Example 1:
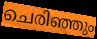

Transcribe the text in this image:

ചെരിഞ്ഞും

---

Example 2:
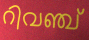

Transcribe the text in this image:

റിവഞ്ച്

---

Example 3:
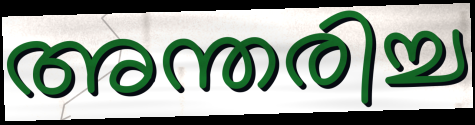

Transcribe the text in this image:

അന്തരിച്ച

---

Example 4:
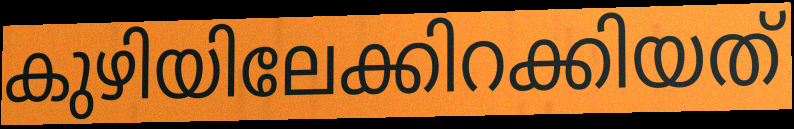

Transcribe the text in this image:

കുഴിയിലേക്കിറക്കിയത്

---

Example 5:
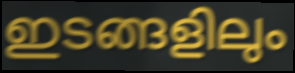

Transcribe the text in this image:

ഇടങ്ങളിലും